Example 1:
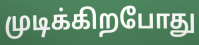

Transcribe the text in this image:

முடிக்கிறபோது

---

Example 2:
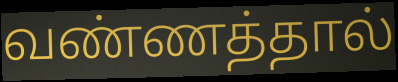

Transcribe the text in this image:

வண்ணத்தால்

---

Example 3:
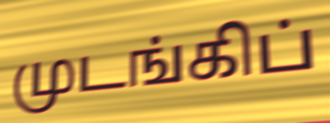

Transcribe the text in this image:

முடங்கிப்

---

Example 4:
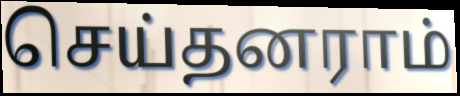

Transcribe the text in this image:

செய்தனராம்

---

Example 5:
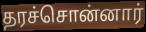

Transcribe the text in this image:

தரச்சொன்னார்